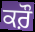
ਕਰ਼ੌ